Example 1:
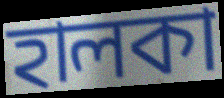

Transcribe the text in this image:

হালকা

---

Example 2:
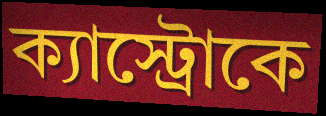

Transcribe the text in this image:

ক্যাস্ট্রোকে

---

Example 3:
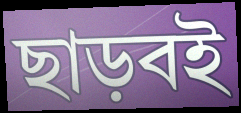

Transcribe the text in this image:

ছাড়বই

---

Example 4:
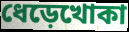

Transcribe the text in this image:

ধেড়েখোকা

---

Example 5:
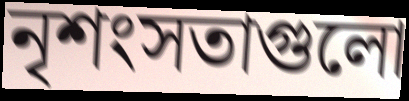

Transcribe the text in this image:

নৃশংসতাগুলো